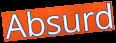
Absurd